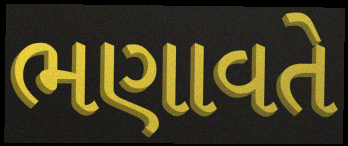
ભણાવતે